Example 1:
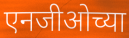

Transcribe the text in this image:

एनजीओच्या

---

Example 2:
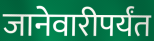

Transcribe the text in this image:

जानेवारीपर्यंत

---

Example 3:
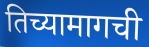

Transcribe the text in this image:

तिच्यामागची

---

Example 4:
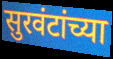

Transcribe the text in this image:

सुरवंटांच्या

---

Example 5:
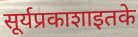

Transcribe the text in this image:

सूर्यप्रकाशाइतके